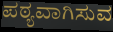
ಪಠ್ಯವಾಗಿಸುವ